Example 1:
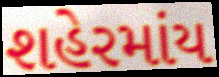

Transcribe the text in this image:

શહેરમાંય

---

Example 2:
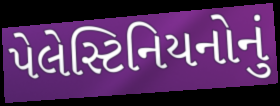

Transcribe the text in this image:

પેલેસ્ટિનિયનોનું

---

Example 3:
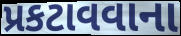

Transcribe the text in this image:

પ્રકટાવવાના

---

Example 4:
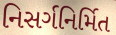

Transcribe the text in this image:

નિસર્ગનિર્મિત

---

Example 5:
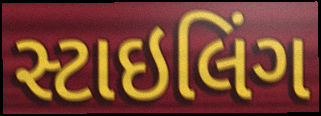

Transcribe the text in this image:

સ્ટાઇલિંગ